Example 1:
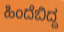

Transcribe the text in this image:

ಹಿಂದೆಬಿದ್ದ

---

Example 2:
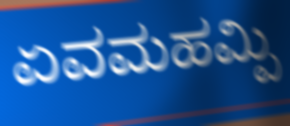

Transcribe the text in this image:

ಏವಮಹಮ್ಪಿ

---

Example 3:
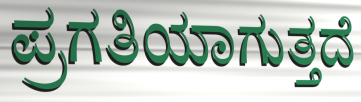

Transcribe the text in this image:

ಪ್ರಗತಿಯಾಗುತ್ತದೆ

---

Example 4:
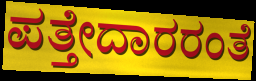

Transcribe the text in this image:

ಪತ್ತೇದಾರರಂತೆ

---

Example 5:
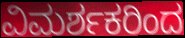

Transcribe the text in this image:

ವಿಮರ್ಶಕರಿಂದ